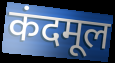
कंदमूल